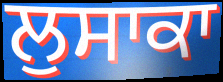
ਲੁਸਾਕਾ